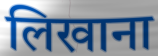
लिखाना